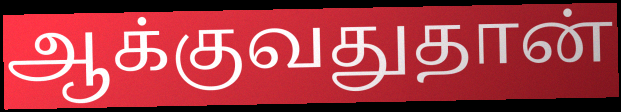
ஆக்குவதுதான்